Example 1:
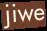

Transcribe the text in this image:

jiwe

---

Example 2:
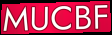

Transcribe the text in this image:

MUCBF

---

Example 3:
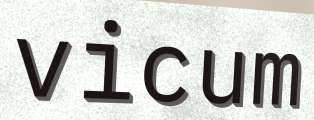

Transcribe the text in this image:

vicum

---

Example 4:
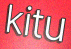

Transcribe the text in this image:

kitu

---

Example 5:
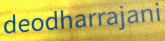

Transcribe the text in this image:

deodharrajani